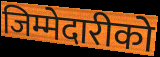
जिम्मेदारीको